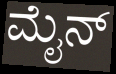
ಮೈನ್